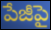
పేజీపై